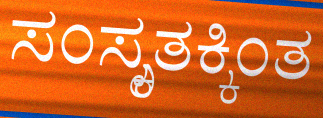
ಸಂಸ್ಕೃತಕ್ಕಿಂತ